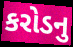
કરોડનુ